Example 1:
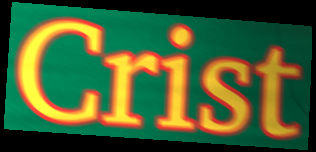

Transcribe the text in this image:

Crist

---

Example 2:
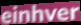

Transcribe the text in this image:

einhver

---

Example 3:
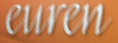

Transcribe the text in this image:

euren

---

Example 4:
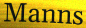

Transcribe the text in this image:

Manns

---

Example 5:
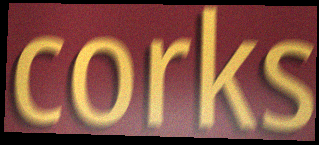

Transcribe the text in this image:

corks